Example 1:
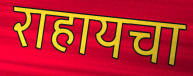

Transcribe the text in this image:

राहायचा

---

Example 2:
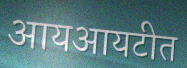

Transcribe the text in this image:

आयआयटीत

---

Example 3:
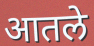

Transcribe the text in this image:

आतले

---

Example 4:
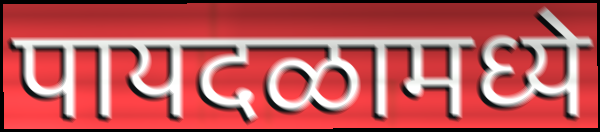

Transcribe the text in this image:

पायदळामध्ये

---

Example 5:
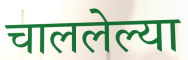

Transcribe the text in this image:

चाललेल्या